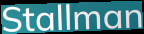
Stallman